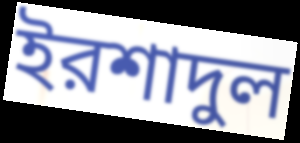
ইরশাদুল